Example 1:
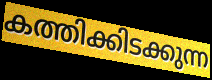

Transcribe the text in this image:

കത്തിക്കിടക്കുന്ന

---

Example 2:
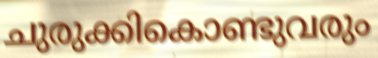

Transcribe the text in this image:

ചുരുക്കികൊണ്ടുവരും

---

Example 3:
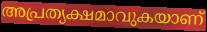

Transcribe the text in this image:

അപ്രത്യക്ഷമാവുകയാണ്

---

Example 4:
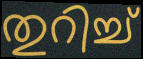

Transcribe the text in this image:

തുറിച്ച്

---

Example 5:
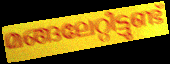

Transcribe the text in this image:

മങ്ങലേറ്റിട്ടുണ്ട്